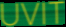
UVIT